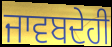
ਜਾਵਬਦੇਹੀ